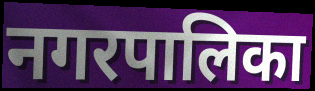
नगरपालिका